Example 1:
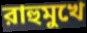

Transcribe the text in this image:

রাহুমুখে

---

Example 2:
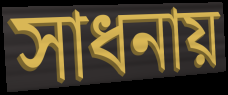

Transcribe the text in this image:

সাধনায়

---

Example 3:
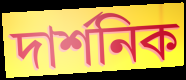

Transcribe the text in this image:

দার্শনিক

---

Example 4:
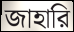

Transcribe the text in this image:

জাহারি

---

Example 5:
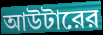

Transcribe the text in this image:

আউটারের